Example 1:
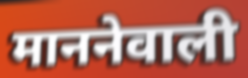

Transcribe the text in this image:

माननेवाली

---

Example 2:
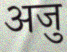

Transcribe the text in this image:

अजु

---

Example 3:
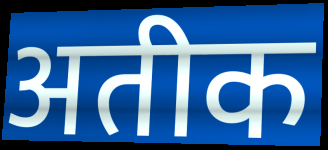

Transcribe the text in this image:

अतीक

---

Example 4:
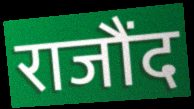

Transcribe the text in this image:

राजौंद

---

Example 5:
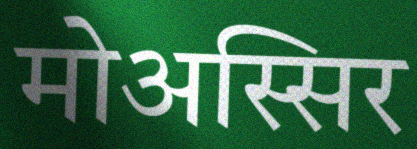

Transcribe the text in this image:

मोअस्सिर